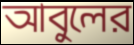
আবুলের